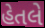
હેતલે